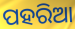
ପହରିଆ